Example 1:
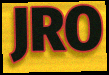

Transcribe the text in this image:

JRO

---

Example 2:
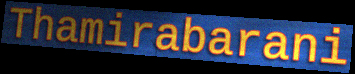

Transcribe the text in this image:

Thamirabarani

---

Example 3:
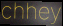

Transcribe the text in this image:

chhey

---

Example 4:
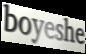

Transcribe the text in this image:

boyeshe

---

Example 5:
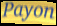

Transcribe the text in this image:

Payon